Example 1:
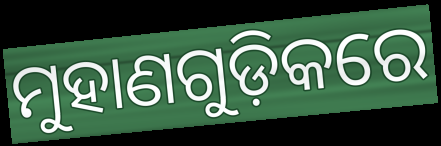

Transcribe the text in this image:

ମୁହାଣଗୁଡ଼ିକରେ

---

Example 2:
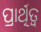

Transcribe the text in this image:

ପ୍ରାର୍ଥିତ୍ୱ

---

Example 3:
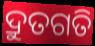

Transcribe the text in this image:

ଦ୍ରୁତଗତି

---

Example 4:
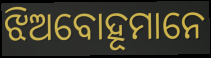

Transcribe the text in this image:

ଝିଅବୋହୂମାନେ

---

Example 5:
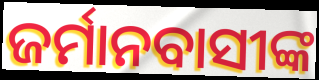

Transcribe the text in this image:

ଜର୍ମାନବାସୀଙ୍କ